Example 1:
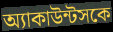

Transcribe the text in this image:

অ্যাকাউন্টসকে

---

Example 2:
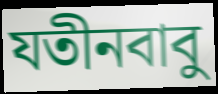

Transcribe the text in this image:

যতীনবাবু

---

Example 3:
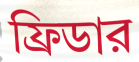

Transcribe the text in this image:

ফ্রিডার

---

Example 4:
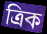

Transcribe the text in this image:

ত্রিক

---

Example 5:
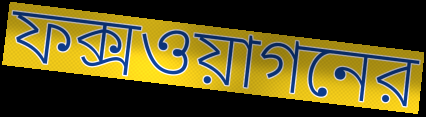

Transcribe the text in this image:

ফক্সওয়াগনের